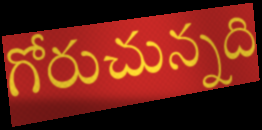
గోరుచున్నది